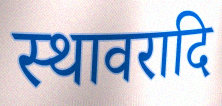
स्थावरादि